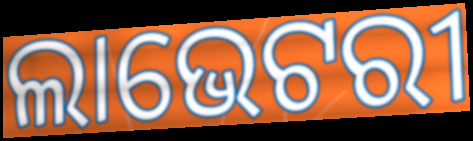
ଲାଭେଟରୀ